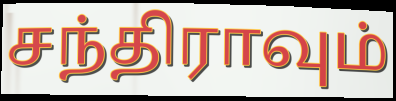
சந்திராவும்